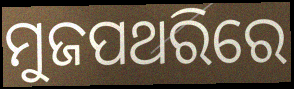
ମୁଜପଥରିରେ